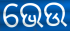
ଭେଉ